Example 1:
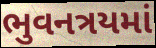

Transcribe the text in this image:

ભુવનત્રયમાં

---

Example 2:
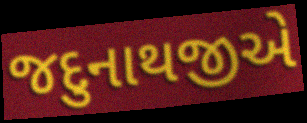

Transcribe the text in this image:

જદુનાથજીએ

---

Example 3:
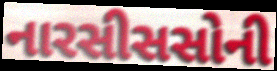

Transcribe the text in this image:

નારસીસસોની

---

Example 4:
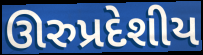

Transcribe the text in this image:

ઊરુપ્રદેશીય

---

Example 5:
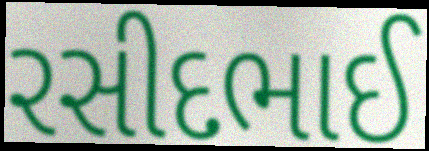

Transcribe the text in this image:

રસીદભાઈ